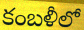
కంబళీలో